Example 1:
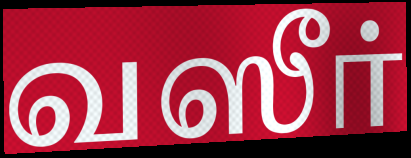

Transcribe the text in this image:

வஸீர்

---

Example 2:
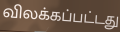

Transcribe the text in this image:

விலக்கப்பட்டது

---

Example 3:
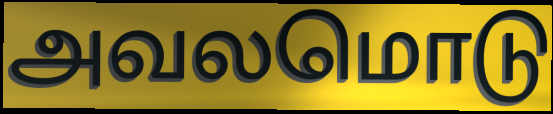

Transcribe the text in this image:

அவலமொடு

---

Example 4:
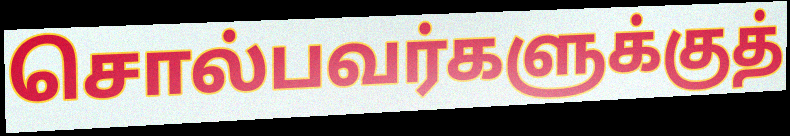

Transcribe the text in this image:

சொல்பவர்களுக்குத்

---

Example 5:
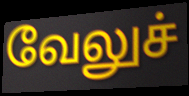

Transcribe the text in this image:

வேலுச்